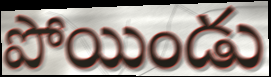
పోయిండు